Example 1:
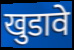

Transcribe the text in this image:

खुडावे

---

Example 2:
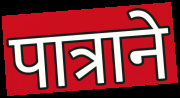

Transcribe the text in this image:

पात्राने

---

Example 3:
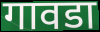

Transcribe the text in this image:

गावडा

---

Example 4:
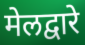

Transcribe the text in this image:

मेलद्वारे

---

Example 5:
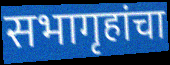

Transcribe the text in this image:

सभागृहांचा